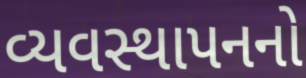
વ્યવસ્થાપનનો